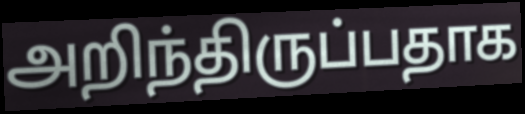
அறிந்திருப்பதாக